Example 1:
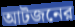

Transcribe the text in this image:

আটজনের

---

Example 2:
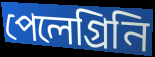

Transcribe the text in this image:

পেলেগ্রিনি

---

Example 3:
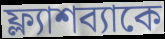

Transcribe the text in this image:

ফ্ল্যাশব্যাকে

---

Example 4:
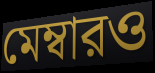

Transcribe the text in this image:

মেম্বারও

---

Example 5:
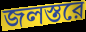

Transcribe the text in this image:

জলস্তরে